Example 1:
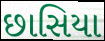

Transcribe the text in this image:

છાસિયા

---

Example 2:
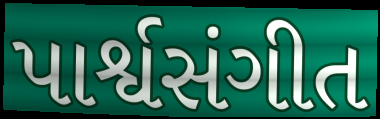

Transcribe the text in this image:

પાર્શ્વસંગીત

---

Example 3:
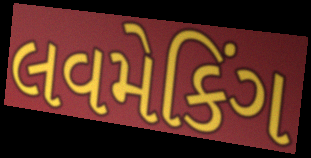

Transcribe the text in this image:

લવમેકિંગ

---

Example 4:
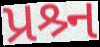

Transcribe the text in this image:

પ્રશ્ર્ન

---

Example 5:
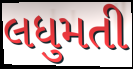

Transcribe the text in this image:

લધુમતી